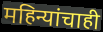
महिन्यांचाही